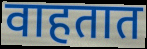
वाहतात